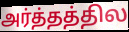
அர்த்தத்தில